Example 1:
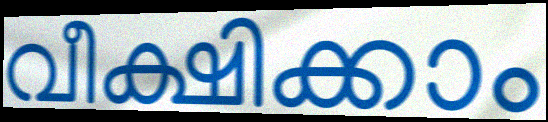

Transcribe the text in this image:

വീക്ഷിക്കാം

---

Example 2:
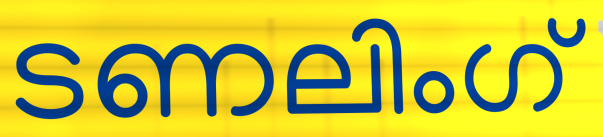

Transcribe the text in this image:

ടണലിംഗ്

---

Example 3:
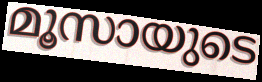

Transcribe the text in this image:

മൂസായുടെ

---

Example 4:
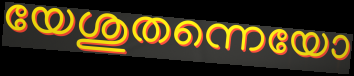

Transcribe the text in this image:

യേശുതന്നെയോ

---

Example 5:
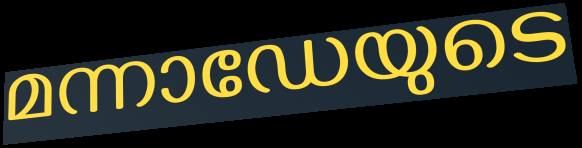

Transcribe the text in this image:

മന്നാഡേയുടെ